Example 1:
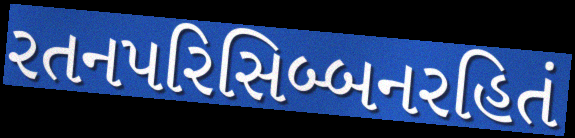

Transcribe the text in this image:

રતનપરિસિબ્બનરહિતં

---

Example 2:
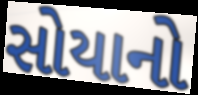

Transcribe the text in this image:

સોયાનો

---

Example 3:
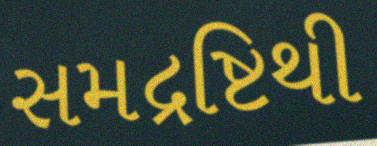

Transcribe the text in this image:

સમદ્રષ્ટિથી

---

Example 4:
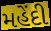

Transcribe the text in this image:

મહેંદી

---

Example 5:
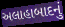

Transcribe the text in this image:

અલાહાબાદનું